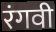
रंगवी